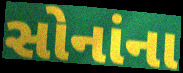
સોનાંના